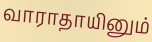
வாராதாயினும்